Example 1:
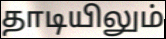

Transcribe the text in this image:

தாடியிலும்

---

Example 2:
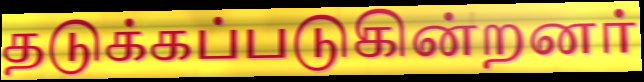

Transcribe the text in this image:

தடுக்கப்படுகின்றனர்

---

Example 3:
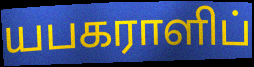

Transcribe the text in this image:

யபகராளிப்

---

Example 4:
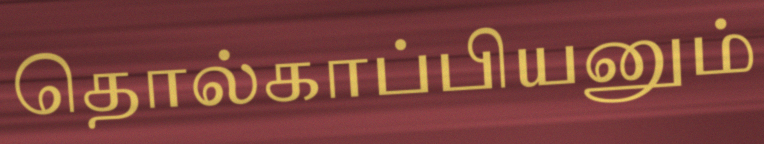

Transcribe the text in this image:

தொல்காப்பியனும்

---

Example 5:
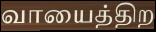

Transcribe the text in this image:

வாயைத்திற